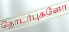
தொடர்புகளோ